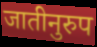
जातीनुरुप